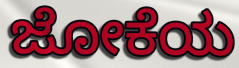
ಜೋಕೆಯ